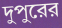
দুপুরের